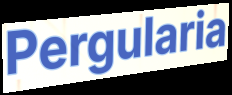
Pergularia